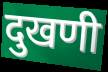
दुखणी